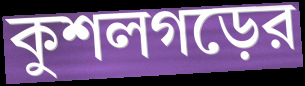
কুশলগড়ের